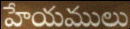
హేయములు